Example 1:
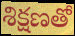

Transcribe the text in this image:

శిక్షణతో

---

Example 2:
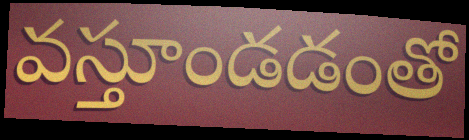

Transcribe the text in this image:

వస్తూండడంతో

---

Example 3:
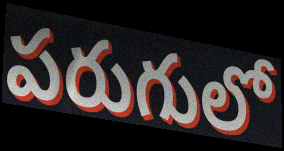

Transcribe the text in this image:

పరుగులో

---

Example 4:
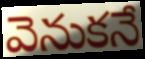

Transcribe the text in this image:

వెనుకనే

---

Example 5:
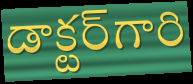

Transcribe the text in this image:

డాక్టర్‌గారి